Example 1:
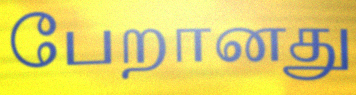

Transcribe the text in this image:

பேறானது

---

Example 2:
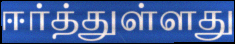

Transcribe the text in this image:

ஈர்த்துள்ளது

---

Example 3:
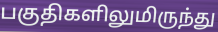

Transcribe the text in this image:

பகுதிகளிலுமிருந்து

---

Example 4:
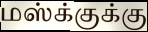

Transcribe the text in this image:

மஸ்க்குக்கு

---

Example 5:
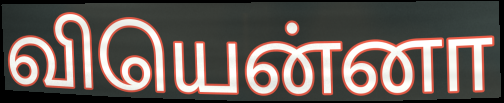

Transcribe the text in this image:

வியென்னா